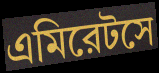
এমিরেটসে